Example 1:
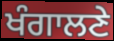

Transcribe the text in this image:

ਖੰਗਾਲਣੇ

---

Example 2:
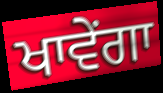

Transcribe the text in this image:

ਖਾਵੇਂਗਾ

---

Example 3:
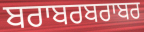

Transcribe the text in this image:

ਬਰਾਬਰਬਰਾਬਰ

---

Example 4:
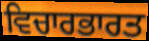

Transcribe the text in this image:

ਵਿਚਾਰਭਾਰਤ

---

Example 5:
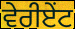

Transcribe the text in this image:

ਵੇਰੀਏਂਟ